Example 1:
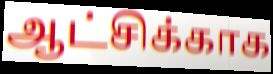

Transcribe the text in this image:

ஆட்சிக்காக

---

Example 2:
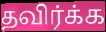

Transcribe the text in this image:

தவிர்க்க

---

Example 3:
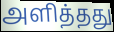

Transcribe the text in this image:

அளித்தது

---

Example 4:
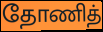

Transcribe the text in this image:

தோணித்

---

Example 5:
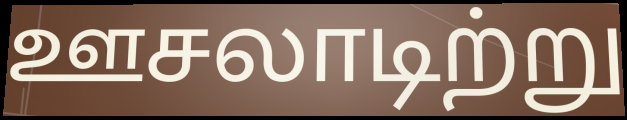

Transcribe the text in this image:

ஊசலாடிற்று